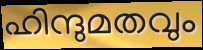
ഹിന്ദുമതവും